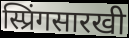
स्प्रिंगसारखी